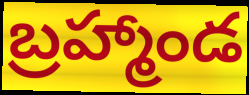
బ్రహ్మాండ